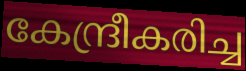
കേന്ദ്രീകരിച്ച